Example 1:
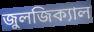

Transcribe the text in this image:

জুলজিক্যাল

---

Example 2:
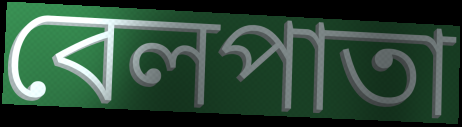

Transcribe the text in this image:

বেলপাতা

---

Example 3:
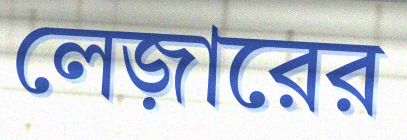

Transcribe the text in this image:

লেজ়ারের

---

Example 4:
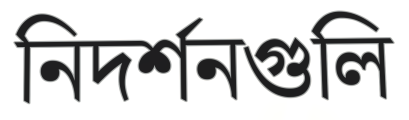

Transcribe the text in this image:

নিদর্শনগুলি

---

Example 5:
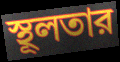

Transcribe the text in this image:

স্থূলতার